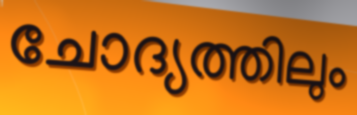
ചോദ്യത്തിലും